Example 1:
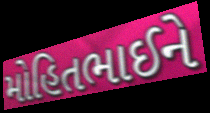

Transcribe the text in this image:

મોહિતભાઈને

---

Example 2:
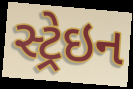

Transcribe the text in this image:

સ્ટ્રેઇન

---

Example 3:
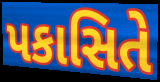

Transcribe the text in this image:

પકાસિતે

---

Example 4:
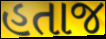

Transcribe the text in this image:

હતાજ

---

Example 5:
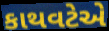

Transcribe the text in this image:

કાથવટેએ